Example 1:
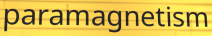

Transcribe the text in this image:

paramagnetism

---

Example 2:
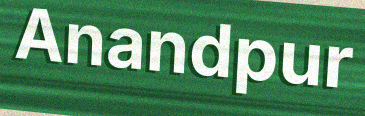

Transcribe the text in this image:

Anandpur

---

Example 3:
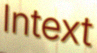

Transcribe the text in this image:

Intext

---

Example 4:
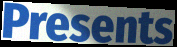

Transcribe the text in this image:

Presents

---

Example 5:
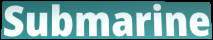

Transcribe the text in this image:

Submarine